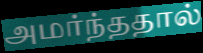
அமர்ந்ததால்